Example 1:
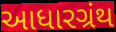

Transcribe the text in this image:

આધારગ્રંથ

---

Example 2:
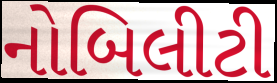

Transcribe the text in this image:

નોબિલીટી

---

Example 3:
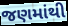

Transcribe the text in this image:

જણમાંથી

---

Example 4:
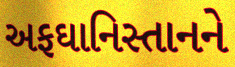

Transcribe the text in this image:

અફઘાનિસ્તાનને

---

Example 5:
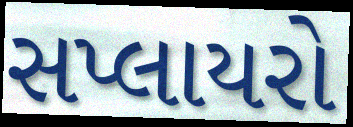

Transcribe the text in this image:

સપ્લાયરો